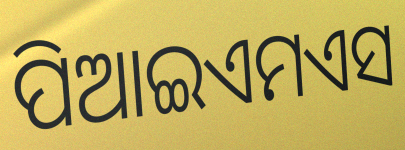
ପିଆଇଏମଏସ